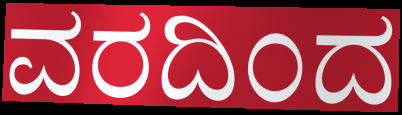
ವರದಿಂದ